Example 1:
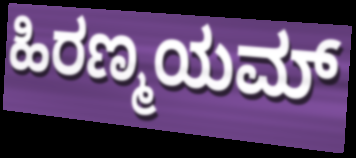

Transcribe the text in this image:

ಹಿರಣ್ಮಯಮ್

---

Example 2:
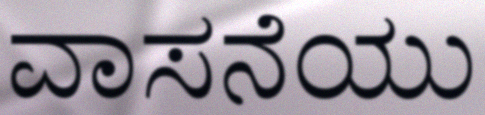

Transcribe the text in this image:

ವಾಸನೆಯು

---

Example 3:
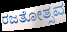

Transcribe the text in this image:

ರಜತೋತ್ಸವ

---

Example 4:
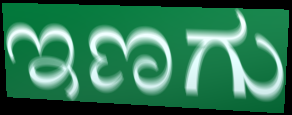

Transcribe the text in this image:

ಇಣಗು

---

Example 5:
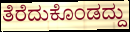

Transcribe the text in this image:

ತೆರೆದುಕೊಂಡದ್ದು